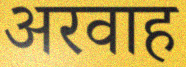
अरवाह